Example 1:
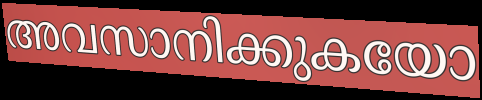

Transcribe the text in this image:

അവസാനിക്കുകയോ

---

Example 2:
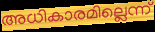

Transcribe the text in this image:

അധികാരമില്ലെന്ന്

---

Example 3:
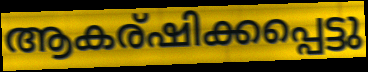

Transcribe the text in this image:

ആകര്ഷിക്കപ്പെട്ടു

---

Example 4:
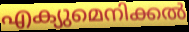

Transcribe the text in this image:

എക്യുമെനിക്കൽ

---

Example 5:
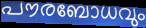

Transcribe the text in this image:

പൗരബോധവും